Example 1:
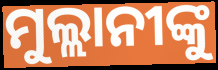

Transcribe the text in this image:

ମୁଲ୍ଲାନୀଙ୍କୁ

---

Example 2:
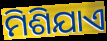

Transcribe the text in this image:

ମିଶିଯାଏ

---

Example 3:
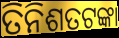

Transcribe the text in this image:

ତିନିଶତଟଙ୍କା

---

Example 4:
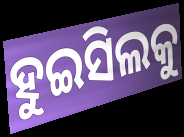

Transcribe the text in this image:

ହୁଇସିଲକୁ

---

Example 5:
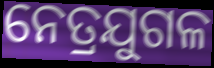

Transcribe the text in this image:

ନେତ୍ରଯୁଗଳ